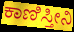
ಕಾಣಿಸ್ತೀನಿ